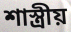
শাস্ত্ৰীয়